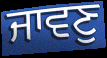
ਜਾਵਣੁ